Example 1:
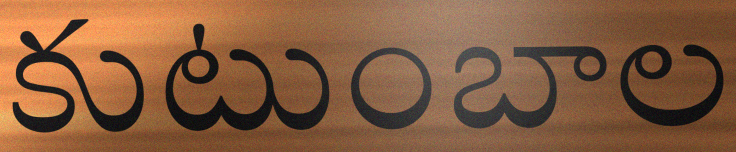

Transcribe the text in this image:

కుటుంబాల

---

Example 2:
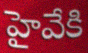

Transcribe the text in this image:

హైవేకి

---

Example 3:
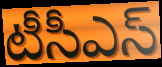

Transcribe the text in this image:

టీసీఎస్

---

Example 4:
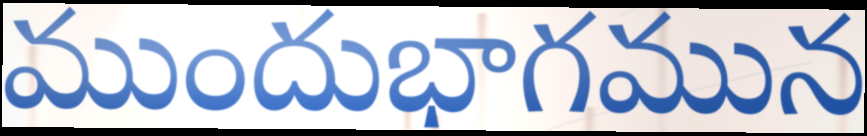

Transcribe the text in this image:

ముందుభాగమున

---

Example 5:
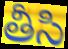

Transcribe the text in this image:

తీసి